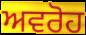
ਅਵਰੋਹ